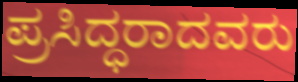
ಪ್ರಸಿದ್ಧರಾದವರು